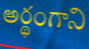
అర్థంగాని